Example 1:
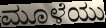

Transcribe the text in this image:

ಮೂಳೆಯು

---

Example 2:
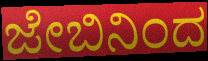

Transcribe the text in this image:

ಜೇಬಿನಿಂದ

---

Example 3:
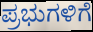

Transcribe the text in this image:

ಪ್ರಭುಗಳಿಗೆ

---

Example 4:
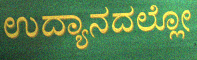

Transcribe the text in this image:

ಉದ್ಯಾನದಲ್ಲೋ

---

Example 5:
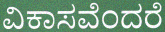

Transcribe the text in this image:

ವಿಕಾಸವೆಂದರೆ